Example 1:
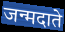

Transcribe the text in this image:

जन्मदाते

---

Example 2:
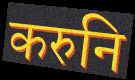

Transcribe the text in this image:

करुनि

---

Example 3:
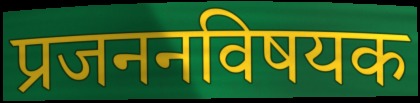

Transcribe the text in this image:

प्रजननविषयक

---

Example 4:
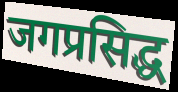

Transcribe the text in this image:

जगप्रसिद्ध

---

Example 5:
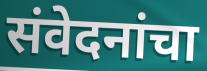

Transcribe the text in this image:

संवेदनांचा